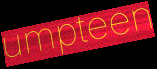
umpteen